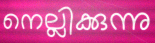
നെല്ലിക്കുന്നു